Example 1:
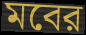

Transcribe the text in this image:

মবের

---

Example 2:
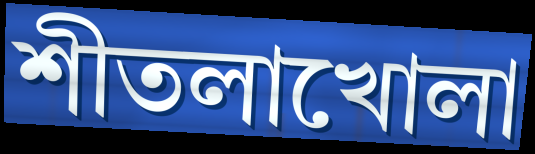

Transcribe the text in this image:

শীতলাখোলা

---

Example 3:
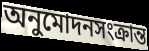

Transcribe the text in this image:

অনুমোদনসংক্রান্ত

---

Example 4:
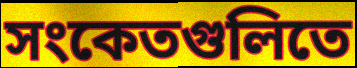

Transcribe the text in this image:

সংকেতগুলিতে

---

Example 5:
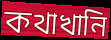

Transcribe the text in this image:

কথাখানি